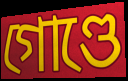
গোণ্ডে